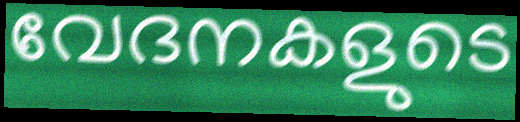
വേദനകളുടെ